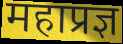
महाप्रज्ञ